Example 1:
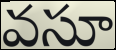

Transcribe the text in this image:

వసూ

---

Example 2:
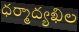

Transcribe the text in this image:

ధర్మాద్యఖిల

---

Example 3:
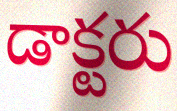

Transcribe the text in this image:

డాక్టరు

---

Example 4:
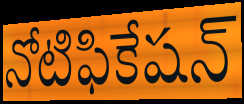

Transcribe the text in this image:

నోటిఫికేషన్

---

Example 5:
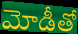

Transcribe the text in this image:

మోడీతో